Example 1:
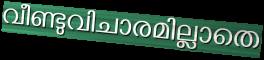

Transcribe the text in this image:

വീണ്ടുവിചാരമില്ലാതെ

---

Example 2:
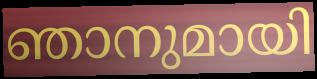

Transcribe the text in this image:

ഞാനുമായി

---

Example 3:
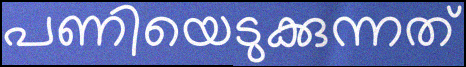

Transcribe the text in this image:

പണിയെടുക്കുന്നത്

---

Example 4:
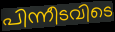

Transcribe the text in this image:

പിന്നീടവിടെ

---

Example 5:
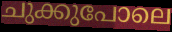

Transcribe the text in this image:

ചുക്കുപോലെ